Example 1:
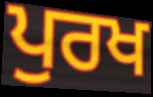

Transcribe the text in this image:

ਪੁਰਖ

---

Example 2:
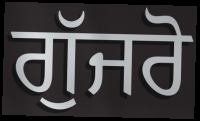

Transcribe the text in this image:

ਗੁੱਜਰੋ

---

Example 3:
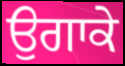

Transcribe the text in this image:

ਉਗਾਕੇ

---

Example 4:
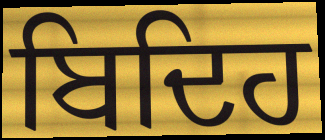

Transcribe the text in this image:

ਬਿਦਿਹ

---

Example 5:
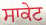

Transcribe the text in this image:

ਸਾਕੇਟ